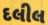
દલીલ